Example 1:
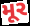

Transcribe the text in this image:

મૂર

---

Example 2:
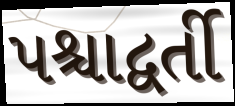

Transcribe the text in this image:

પશ્ચાદ્વર્તી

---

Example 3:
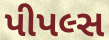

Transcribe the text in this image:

પીપલ્સ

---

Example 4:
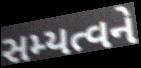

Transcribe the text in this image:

સમ્યત્વને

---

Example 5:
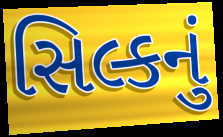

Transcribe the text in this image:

સિલ્કનું